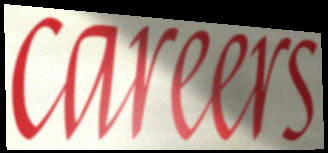
careers